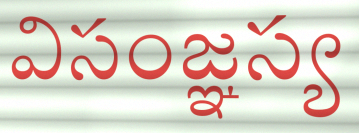
విసంజ్ఞస్య